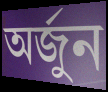
অৰ্জুন